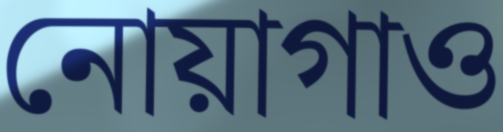
নোয়াগাও